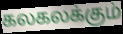
கலகலக்கும்